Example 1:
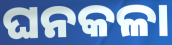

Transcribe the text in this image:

ଘନକଳା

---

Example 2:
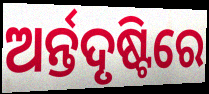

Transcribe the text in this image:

ଅର୍ନ୍ତଦୃଷ୍ଟିରେ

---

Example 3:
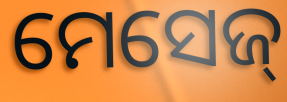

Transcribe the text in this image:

ମେସେଜ୍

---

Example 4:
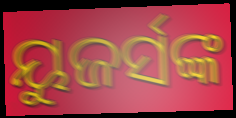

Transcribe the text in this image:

ୟୁଜର୍ସଙ୍କ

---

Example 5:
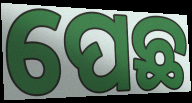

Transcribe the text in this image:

ପେଛ